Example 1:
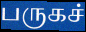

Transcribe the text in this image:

பருகச்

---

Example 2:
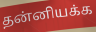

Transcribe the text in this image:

தன்னியக்க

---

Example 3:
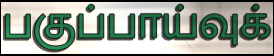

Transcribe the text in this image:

பகுப்பாய்வுக்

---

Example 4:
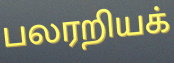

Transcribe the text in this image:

பலரறியக்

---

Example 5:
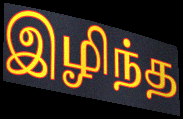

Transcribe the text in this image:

இழிந்த